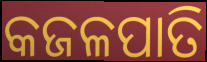
କଜଳପାତି